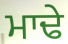
ਮਾਢੇ